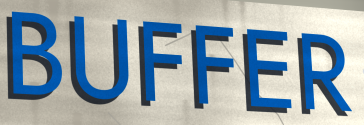
BUFFER